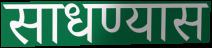
साधण्यास